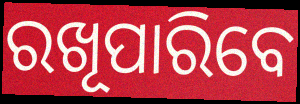
ରଖୂପାରିବେ